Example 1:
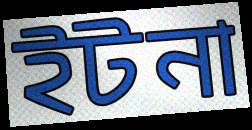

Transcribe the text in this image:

ইটনা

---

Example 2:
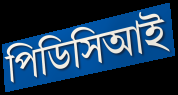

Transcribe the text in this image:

পিডিসিআই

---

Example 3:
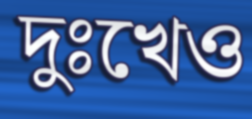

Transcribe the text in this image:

দুঃখেও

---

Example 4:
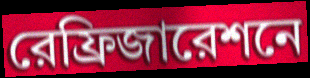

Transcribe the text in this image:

রেফ্রিজারেশনে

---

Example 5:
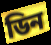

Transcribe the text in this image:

ডিন